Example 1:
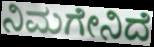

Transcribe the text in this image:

ನಿಮಗೇನಿದೆ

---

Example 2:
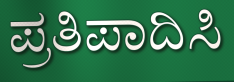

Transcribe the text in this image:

ಪ್ರತಿಪಾದಿಸಿ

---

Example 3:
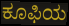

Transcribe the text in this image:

ಕೂಫಿಯ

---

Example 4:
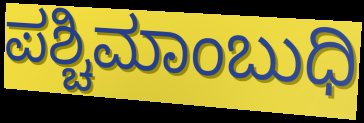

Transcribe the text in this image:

ಪಶ್ಚಿಮಾಂಬುಧಿ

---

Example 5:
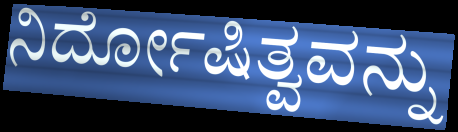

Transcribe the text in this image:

ನಿರ್ದೋಷಿತ್ವವನ್ನು